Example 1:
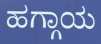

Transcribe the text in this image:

ಹಗ್ಗಾಯ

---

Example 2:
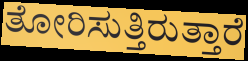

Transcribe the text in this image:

ತೋರಿಸುತ್ತಿರುತ್ತಾರೆ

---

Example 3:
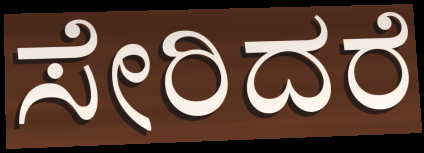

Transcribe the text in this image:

ಸೇರಿದರೆ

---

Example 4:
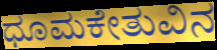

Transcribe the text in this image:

ಧೂಮಕೇತುವಿನ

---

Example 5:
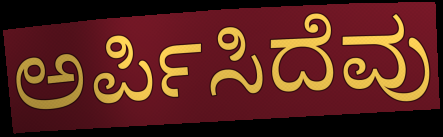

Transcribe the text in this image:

ಅರ್ಪಿಸಿದೆವು